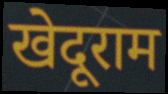
खेदूराम